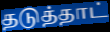
தடுத்தாட்